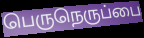
பெருநெருப்பை